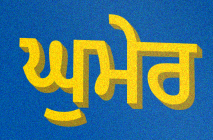
ਘੁਮੇਰ